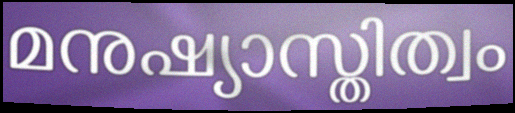
മനുഷ്യാസ്തിത്വം